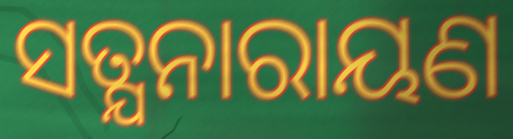
ସତ୍ଯନାରାୟଣ